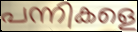
പന്നികളെ